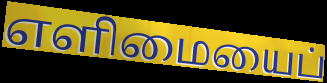
எளிமையைப்